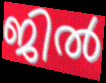
ജിൽ